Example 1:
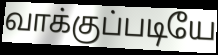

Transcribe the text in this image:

வாக்குப்படியே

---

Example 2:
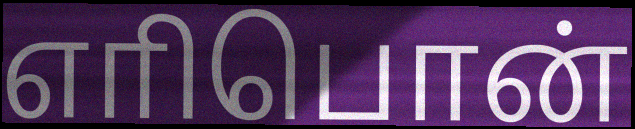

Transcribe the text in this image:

எரிபொன்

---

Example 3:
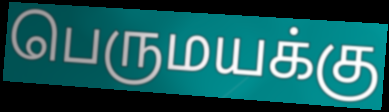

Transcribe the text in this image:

பெருமயக்கு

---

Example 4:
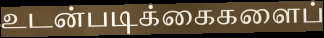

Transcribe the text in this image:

உடன்படிக்கைகளைப்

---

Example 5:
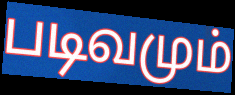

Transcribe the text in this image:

படிவமும்